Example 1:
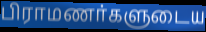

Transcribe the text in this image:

பிராமணர்களுடைய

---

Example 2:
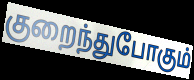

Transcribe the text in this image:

குறைந்துபோகும்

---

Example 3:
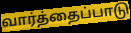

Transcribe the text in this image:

வார்த்தைப்பாடு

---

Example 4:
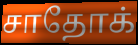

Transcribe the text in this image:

சாதோக்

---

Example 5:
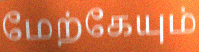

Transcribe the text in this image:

மேற்கேயும்